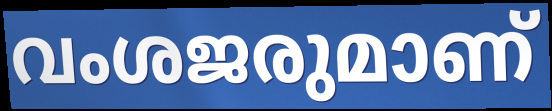
വംശജരുമാണ്